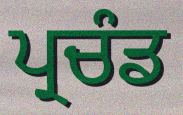
ਪ੍ਰਚੰਡ